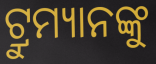
ଟ୍ରୁମ୍ୟାନଙ୍କୁ